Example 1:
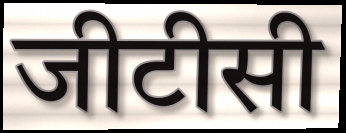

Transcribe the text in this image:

जीटीसी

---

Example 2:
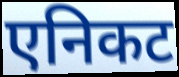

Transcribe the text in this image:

एनिकट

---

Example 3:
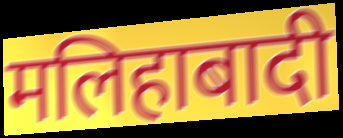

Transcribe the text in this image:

मलिहाबादी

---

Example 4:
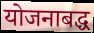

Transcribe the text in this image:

योजनाबद्ध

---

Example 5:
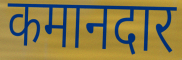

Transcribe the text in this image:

कमानदार